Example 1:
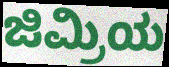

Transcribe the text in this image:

ಜಿಮ್ರಿಯ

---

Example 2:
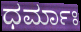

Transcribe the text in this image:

ಧರ್ಮಾಃ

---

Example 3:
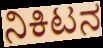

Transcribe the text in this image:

ನಿಕಿಟನ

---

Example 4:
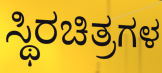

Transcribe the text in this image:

ಸ್ಥಿರಚಿತ್ರಗಳ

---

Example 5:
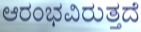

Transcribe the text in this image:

ಆರಂಭವಿರುತ್ತದೆ